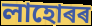
লাহোৰৰ